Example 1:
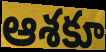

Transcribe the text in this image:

ఆశకూ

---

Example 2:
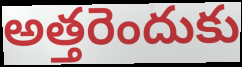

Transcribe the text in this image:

అత్తరెందుకు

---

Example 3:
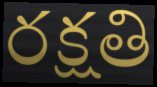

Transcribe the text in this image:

రక్షతి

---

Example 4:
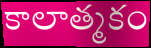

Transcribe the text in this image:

కాలాత్మకం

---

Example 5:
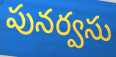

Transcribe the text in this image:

పునర్వసు